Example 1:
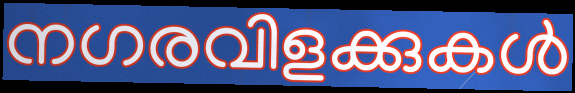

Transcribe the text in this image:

നഗരവിളക്കുകൾ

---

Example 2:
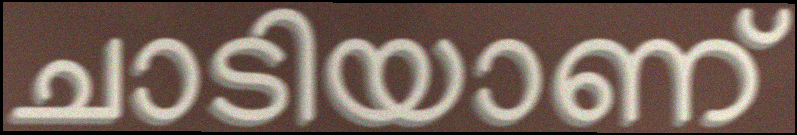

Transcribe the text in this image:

ചാടിയാണ്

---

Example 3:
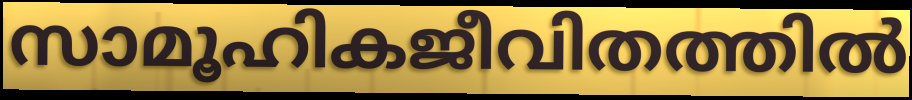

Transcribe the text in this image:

സാമൂഹികജീവിതത്തിൽ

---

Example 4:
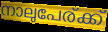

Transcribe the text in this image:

നാലുപേര്ക്ക്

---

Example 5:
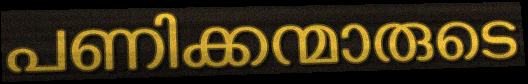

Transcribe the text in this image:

പണിക്കന്മാരുടെ